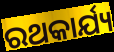
ରଥକାର୍ଯ୍ୟ